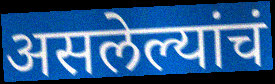
असलेल्यांचं